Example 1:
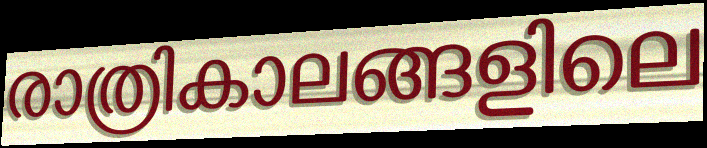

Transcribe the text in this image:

രാത്രികാലങ്ങളിലെ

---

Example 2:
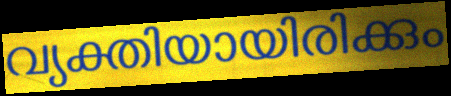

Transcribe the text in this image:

വ്യക്തിയായിരിക്കും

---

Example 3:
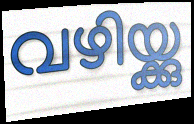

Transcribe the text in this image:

വഴിയ്ക്കു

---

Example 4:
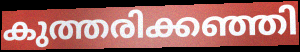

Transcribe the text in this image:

കുത്തരിക്കഞ്ഞി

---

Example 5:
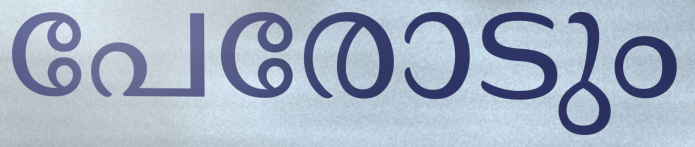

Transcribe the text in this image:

പേരോടും